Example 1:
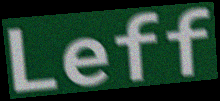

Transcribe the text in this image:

Leff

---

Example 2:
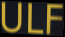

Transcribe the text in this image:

ULF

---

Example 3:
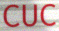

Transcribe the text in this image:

CUC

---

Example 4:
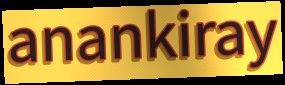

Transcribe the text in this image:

anankiray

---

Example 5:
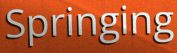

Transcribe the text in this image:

Springing